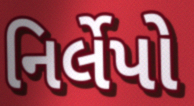
નિર્લેપો